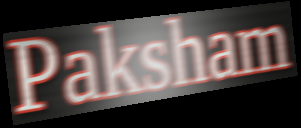
Paksham